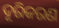
ଦୂରିକରଣ